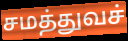
சமத்துவச்